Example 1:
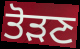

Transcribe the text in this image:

ਤੋੜਣ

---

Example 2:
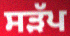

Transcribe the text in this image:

ਸੜੱਪ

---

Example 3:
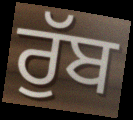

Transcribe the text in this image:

ਰੁੱਬ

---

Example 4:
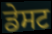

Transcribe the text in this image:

ਡੇਸਟ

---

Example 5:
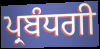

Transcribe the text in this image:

ਪ੍ਰਬੰਧਗੀ